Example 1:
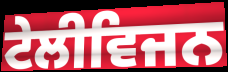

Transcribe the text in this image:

ਟੇਲੀਵਿਜਨ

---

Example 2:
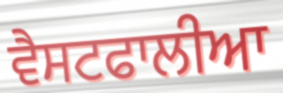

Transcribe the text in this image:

ਵੈਸਟਫਾਲੀਆ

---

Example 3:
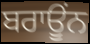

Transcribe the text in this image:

ਬਰਾਊਂਨ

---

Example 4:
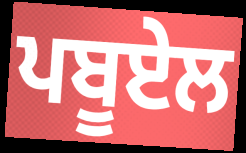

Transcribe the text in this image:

ਪਬੂਏਲ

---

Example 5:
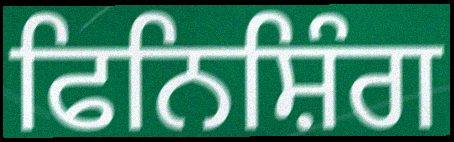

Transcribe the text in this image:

ਫਿਨਿਸ਼ਿੰਗ